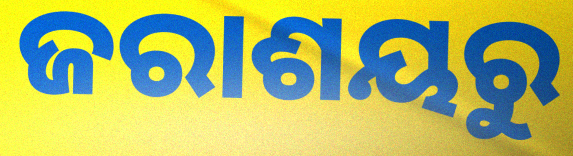
ଜରାଶୟରୁ